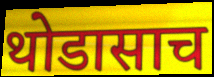
थोडासाच